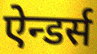
ऐन्डर्स